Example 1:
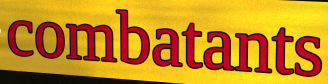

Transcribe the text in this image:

combatants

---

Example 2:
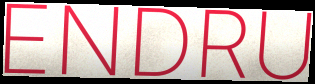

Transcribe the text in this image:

ENDRU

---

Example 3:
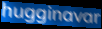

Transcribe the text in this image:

hugginavar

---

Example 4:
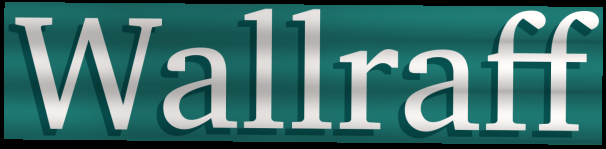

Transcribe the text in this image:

Wallraff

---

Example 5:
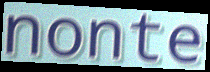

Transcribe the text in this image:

nonte